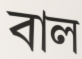
বাল